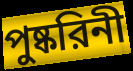
পুষ্করিনী